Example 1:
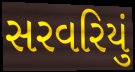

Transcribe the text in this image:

સરવરિયું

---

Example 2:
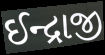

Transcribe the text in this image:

ઈન્દ્રાજી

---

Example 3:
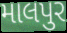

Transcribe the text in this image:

માલપુર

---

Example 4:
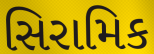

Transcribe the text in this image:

સિરામિક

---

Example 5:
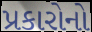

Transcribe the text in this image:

પ્રકારોનો